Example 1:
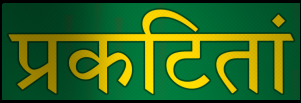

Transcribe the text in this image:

प्रकटितां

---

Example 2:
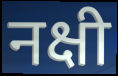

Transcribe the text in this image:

नक्षी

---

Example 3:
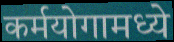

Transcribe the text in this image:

कर्मयोगामध्ये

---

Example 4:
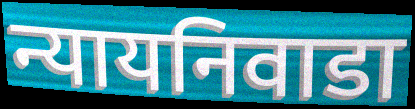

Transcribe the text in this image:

न्यायनिवाडा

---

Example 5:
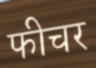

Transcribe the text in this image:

फीचर